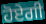
ਹੋਏਗੀ